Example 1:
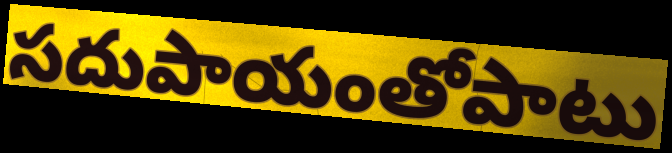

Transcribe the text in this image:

సదుపాయంతోపాటు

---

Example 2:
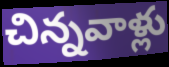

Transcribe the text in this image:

చిన్నవాళ్లు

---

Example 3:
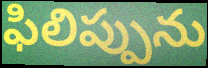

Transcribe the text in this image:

ఫిలిప్పును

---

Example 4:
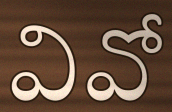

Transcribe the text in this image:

వివో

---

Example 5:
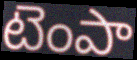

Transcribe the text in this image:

టెంపా